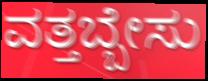
ವತ್ತಬ್ಬೇಸು